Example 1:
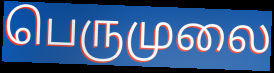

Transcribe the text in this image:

பெருமுலை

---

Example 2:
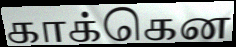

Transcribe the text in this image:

காக்கென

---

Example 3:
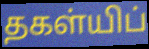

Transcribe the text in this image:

தகள்யிப்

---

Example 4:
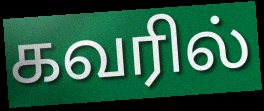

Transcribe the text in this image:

கவரில்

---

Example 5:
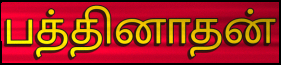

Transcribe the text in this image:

பத்தினாதன்